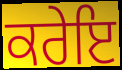
ਕਰੇਇ